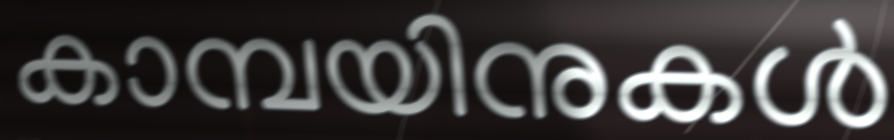
കാമ്പയിനുകൾ